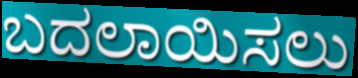
ಬದಲಾಯಿಸಲು